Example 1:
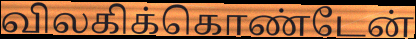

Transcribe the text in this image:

விலகிக்கொண்டேன்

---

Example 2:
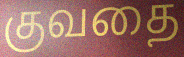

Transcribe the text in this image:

குவதை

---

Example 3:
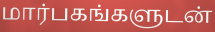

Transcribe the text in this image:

மார்பகங்களுடன்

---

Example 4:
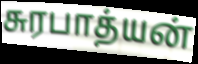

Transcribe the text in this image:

சுரபாத்யன்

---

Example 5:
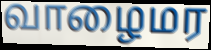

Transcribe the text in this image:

வாழைமர